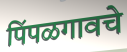
पिंपळगावचे